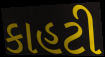
કાહટી